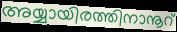
അയ്യായിരത്തിനാനൂറ്